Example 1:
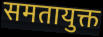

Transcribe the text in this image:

समतायुक्त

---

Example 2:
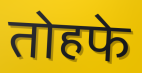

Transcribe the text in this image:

तोहफे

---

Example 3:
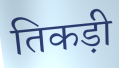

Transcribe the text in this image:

तिकड़ी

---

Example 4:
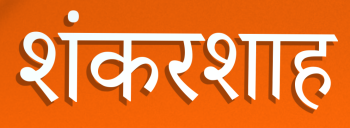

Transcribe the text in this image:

शंकरशाह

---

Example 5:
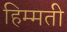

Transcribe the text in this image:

हिम्मती